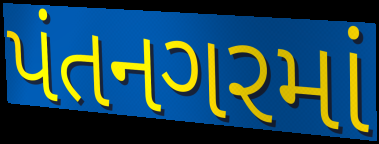
પંતનગરમાં